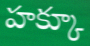
హక్కూ